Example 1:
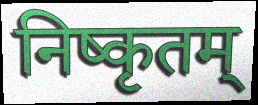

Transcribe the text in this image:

निष्कृतम्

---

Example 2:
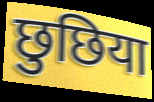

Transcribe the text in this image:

छुछिया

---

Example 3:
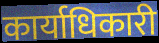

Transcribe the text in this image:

कार्याधिकारी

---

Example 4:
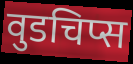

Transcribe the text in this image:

वुडचिप्स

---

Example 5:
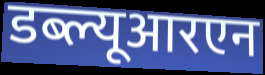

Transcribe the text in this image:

डब्ल्यूआरएन